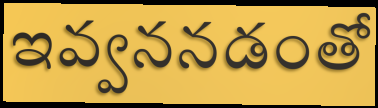
ఇవ్వననడంతో